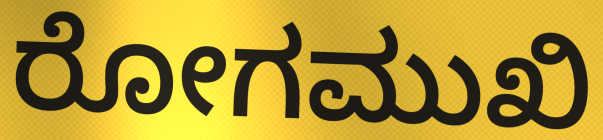
ರೋಗಮುಖಿ